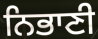
ਨਿਭਾਣੀ